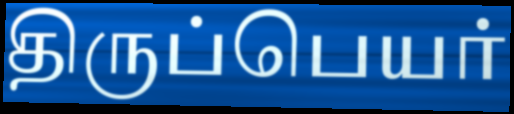
திருப்பெயர்